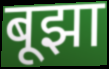
बूझा